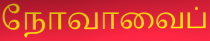
நோவாவைப்